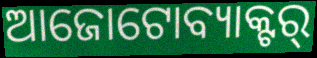
ଆଜୋଟୋବ୍ଯାକ୍ଟର୍